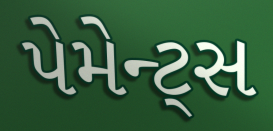
પેમેન્ટ્સ